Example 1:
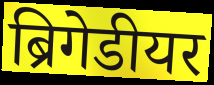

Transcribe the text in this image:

ब्रिगेडीयर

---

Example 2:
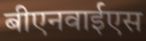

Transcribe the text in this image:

बीएनवाईएस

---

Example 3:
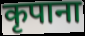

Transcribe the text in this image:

कृपाना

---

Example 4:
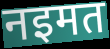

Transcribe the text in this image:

नइमत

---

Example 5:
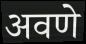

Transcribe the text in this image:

अवणे